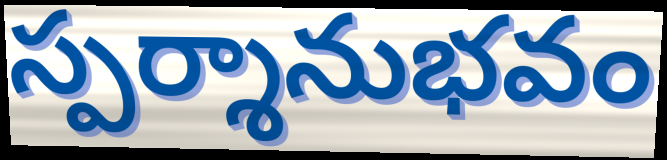
స్పర్శానుభవం